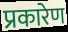
प्रकारेण